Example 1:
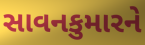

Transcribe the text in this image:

સાવનકુમારને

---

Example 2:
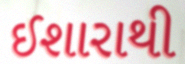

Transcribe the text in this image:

ઈશારાથી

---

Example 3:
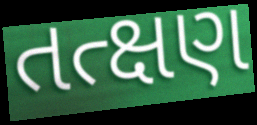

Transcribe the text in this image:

તત્ક્ષણ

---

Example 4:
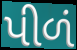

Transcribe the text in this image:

પીળં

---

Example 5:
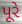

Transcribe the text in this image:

પૂરે